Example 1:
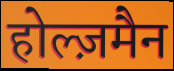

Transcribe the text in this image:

होल्ज़मैन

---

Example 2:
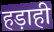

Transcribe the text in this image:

हड़ाही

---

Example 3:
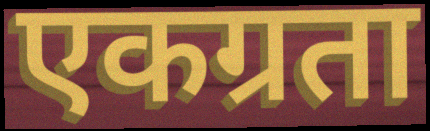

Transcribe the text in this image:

एकग्रता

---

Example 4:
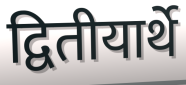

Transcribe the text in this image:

द्वितीयार्थे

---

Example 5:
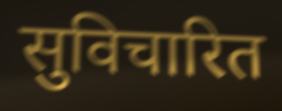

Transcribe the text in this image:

सुविचारित